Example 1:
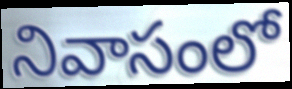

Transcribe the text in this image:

నివాసంలో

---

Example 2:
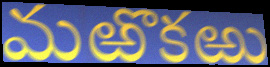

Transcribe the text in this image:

మఱొకఱు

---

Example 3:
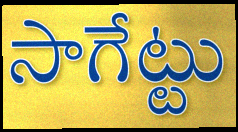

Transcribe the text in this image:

సాగేట్టు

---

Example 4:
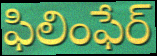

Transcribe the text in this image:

ఫిలింఫేర్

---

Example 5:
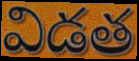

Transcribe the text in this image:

విడత